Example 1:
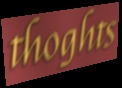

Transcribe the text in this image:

thoghts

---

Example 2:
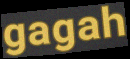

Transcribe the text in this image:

gagah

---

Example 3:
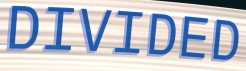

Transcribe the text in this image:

DIVIDED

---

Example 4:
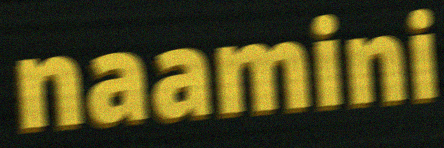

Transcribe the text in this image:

naamini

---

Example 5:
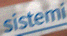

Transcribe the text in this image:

sistemi